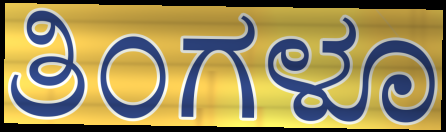
ತಿಂಗಳೂ